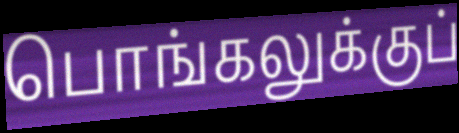
பொங்கலுக்குப்